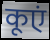
कूएं